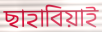
ছাহাবিয়াই